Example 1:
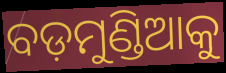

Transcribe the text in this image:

ବଡ଼ମୁଣ୍ଡିଆକୁ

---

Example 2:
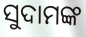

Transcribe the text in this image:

ସୁଦାମଙ୍କ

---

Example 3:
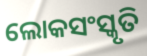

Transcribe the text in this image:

ଲୋକସଂସ୍କୃତି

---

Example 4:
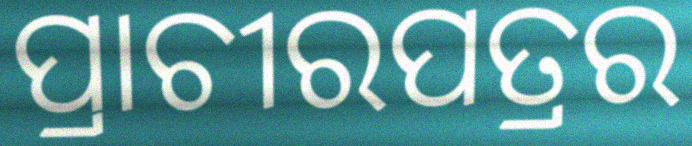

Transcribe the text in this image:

ପ୍ରାଚୀରପତ୍ରର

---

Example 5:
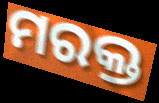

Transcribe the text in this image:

ମରକ୍ତ